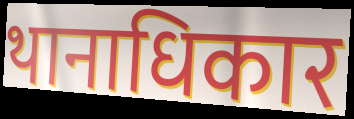
थानाधिकार